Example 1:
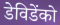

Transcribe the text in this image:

डेविडेंको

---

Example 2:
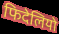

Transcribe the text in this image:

फिदेलियो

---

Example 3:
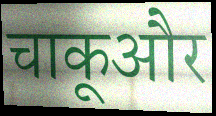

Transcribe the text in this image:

चाकूऔर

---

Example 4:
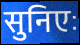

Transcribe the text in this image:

सुनिएः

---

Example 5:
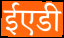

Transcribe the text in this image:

ईएडी